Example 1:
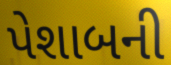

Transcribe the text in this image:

પેશાબની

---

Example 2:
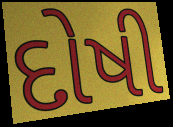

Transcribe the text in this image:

દોષી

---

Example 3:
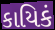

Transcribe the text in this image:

કાયિકં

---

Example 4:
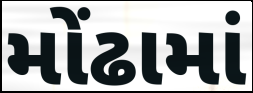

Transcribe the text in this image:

મોંઢામાં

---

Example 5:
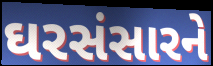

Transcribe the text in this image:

ઘરસંસારને